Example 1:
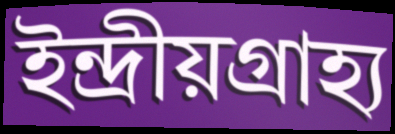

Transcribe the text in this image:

ইন্দ্রীয়গ্রাহ্য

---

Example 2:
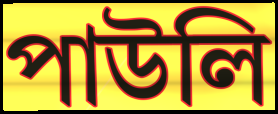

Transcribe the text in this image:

পাউলি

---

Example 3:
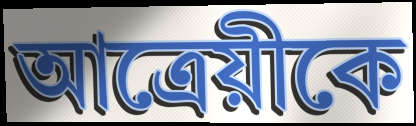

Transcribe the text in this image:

আত্রেয়ীকে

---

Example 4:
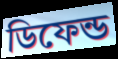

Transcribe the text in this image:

ডিফেন্ড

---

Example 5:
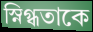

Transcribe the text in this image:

স্নিগ্ধতাকে